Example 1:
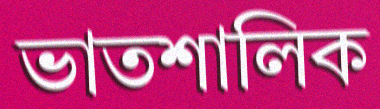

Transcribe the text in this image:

ভাতশালিক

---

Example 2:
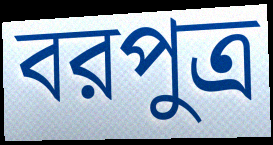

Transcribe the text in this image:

বরপুত্র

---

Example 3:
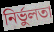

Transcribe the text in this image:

নির্ভুলতা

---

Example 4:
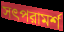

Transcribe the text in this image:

সৎপরামর্শ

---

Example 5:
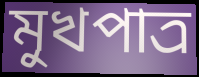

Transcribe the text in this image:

মুখপাত্র